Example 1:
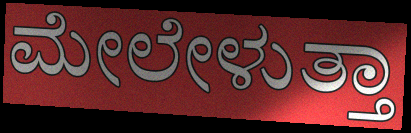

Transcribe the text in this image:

ಮೇಲೇಳುತ್ತಾ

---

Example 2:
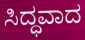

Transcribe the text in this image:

ಸಿದ್ಧವಾದ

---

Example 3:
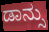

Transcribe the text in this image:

ಡಾನ್ಸು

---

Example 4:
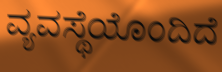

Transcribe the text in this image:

ವ್ಯವಸ್ಥೆಯೊಂದಿದೆ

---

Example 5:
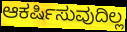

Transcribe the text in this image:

ಆಕರ್ಷಿಸುವುದಿಲ್ಲ